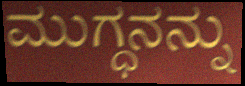
ಮುಗ್ಧನನ್ನು